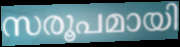
സരൂപമായി